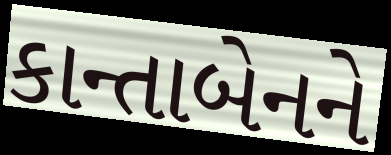
કાન્તાબેનને